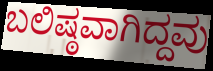
ಬಲಿಷ್ಠವಾಗಿದ್ದವು